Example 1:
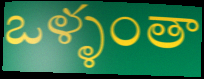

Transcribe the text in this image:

ఒళ్ళంతా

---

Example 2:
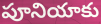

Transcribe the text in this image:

పూనియాకు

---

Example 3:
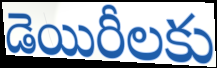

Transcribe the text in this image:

డెయిరీలకు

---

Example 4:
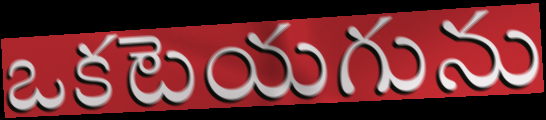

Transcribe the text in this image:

ఒకటెయగును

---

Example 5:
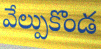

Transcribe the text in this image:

వేల్పుకొండ